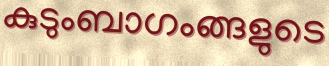
കുടുംബാഗംങ്ങളുടെ